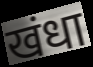
खंधा